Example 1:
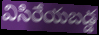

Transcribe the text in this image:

విసిరేయబడ్డ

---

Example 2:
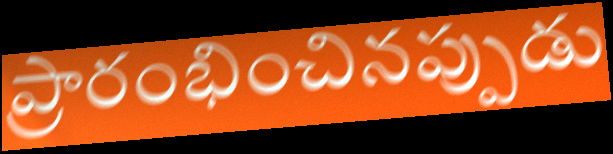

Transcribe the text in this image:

ప్రారంభించినప్పుడు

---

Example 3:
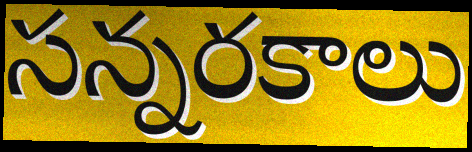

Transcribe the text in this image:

సన్నరకాలు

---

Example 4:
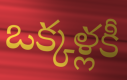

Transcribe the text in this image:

ఒక్కళ్లకీ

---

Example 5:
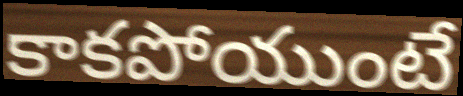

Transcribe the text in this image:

కాకపోయుంటే